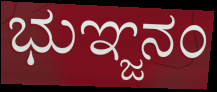
ಭುಞ್ಜನಂ